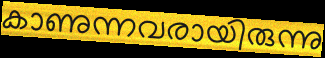
കാണുന്നവരായിരുന്നു